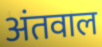
अंतवाल